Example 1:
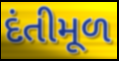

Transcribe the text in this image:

દંતીમૂળ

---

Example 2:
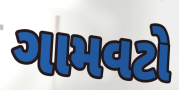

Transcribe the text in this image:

ગામવટો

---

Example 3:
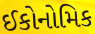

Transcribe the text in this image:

ઈકોનોમિક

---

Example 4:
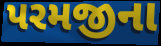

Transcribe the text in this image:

પરમજીના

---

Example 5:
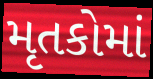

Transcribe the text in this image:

મૃતકોમાં